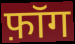
फ़ॉग